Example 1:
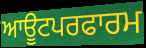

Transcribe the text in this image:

ਆਊਟਪਰਫਾਰਮ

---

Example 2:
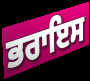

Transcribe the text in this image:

ਭਰਾਇਸ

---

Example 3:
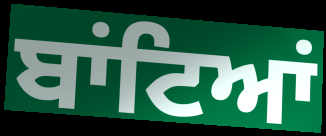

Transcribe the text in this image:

ਬਾਂਟਿਆਂ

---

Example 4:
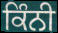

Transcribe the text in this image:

ਕਿੰਨੀ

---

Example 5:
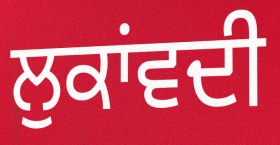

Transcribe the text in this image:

ਲੁਕਾਂਵਦੀ